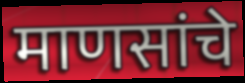
माणसांचे